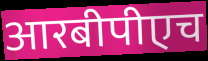
आरबीपीएच